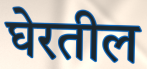
घेरतील